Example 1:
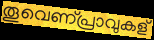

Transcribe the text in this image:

തൂവെണ്പ്രാവുകള്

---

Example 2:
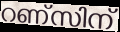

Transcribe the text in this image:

റണ്സിന്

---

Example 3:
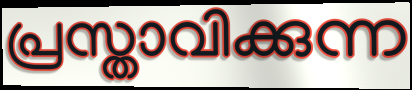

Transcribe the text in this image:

പ്രസ്താവിക്കുന്ന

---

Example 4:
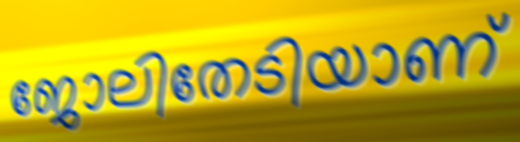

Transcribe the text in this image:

ജോലിതേടിയാണ്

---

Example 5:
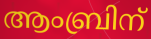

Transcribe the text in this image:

ആംബ്രിന്